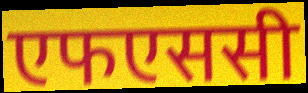
एफएससी